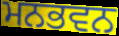
ਮਨਭਵਨ